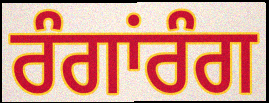
ਰੰਗਾਂਰੰਗ